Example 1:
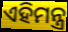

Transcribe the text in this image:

ଏହିମନ୍ତ୍ର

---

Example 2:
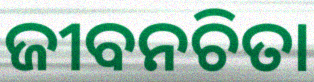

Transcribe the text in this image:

ଜୀବନଚିତା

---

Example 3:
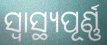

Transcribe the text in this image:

ସ୍ବାସ୍ଥ୍ୟପୂର୍ଣ୍ଣ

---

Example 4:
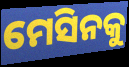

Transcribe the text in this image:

ମେସିନକୁ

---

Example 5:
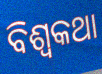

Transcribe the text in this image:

ବିଶ୍ୱକଥା